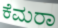
ಕೆಮರಾ